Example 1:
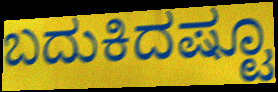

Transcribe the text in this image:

ಬದುಕಿದಷ್ಟೂ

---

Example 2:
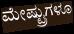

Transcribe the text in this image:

ಮೇಷ್ಟ್ರುಗಳೂ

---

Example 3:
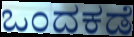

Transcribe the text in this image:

ಒಂದಕಡೆ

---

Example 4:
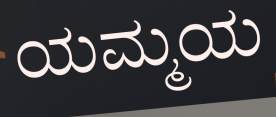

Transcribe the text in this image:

ಯಮ್ಮಯ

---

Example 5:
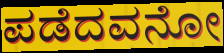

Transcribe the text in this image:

ಪಡೆದವನೋ